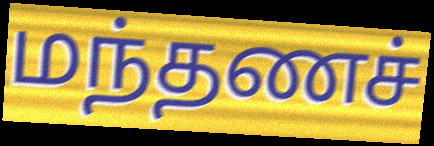
மந்தணச்